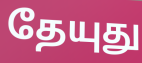
தேயுது